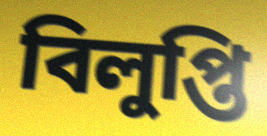
বিলুপ্তি